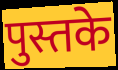
पुस्‍तके